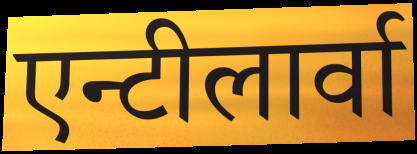
एन्टीलार्वा